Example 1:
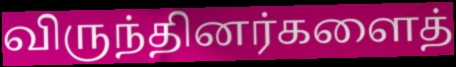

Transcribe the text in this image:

விருந்தினர்களைத்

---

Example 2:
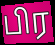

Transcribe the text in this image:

பிர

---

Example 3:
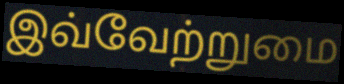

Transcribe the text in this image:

இவ்வேற்றுமை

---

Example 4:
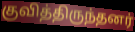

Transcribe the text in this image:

குவித்திருந்தனர்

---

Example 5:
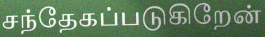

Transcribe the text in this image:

சந்தேகப்படுகிறேன்